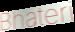
Bhateri